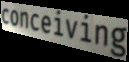
conceiving